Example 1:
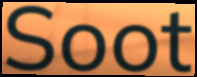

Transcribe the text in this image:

Soot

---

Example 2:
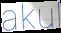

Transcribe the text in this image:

akul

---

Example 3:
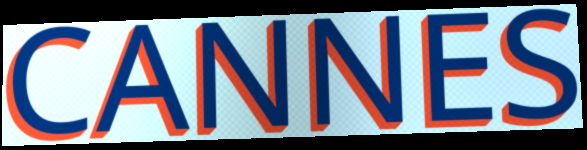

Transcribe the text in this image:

CANNES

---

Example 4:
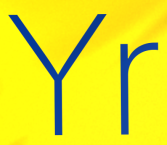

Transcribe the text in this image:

Yr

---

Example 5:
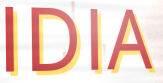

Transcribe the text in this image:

IDIA